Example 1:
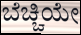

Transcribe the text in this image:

ಬೆಚ್ಚಿಯೇ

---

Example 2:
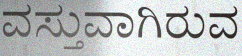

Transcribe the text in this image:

ವಸ್ತುವಾಗಿರುವ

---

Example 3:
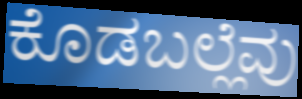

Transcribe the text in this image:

ಕೊಡಬಲ್ಲೆವು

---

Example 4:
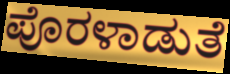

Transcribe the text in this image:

ಪೊರಳಾಡುತೆ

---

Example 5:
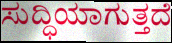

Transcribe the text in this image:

ಸುದ್ಧಿಯಾಗುತ್ತದೆ